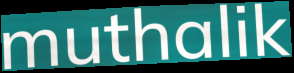
muthalik